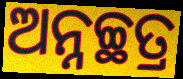
ଅନ୍ନଚ୍ଛତ୍ର